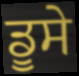
ਡੂਸੇ